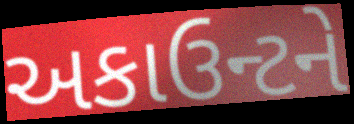
અકાઉન્ટને